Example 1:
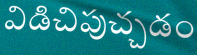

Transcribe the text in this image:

విడిచిపుచ్చడం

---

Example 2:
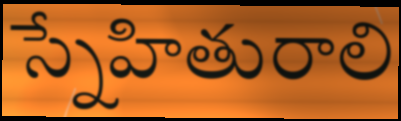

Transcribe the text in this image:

స్నేహితురాలి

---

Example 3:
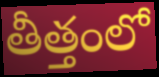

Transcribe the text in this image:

తీత్తంలో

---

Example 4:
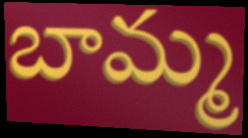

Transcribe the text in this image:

బామ్మ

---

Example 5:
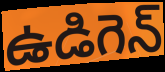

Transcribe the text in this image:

ఉడిగెన్